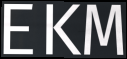
EKM